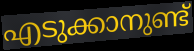
എടുക്കാനുണ്ട്